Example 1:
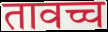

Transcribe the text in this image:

तावच्च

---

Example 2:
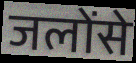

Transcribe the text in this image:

जलोंसे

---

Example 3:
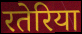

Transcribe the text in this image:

रतेरिया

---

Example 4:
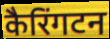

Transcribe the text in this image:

कैरिंगटन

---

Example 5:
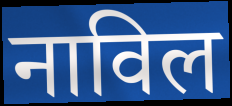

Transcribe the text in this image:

नाविल